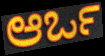
ಆರ್ಒ